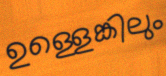
ഉള്ളെങ്കിലും